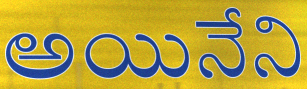
అయినేని